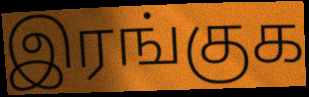
இரங்குக